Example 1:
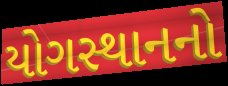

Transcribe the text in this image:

યોગસ્થાનનો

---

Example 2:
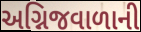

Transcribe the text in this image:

અગ્નિજવાળાની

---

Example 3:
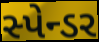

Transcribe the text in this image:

સ્પેન્ડર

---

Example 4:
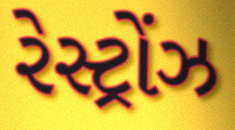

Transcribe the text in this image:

રેસ્ટ્રોંઝ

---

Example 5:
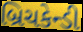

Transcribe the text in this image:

બ્રિચકેન્ડી